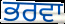
ਭਰਵਾ